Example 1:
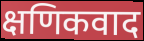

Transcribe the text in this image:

क्षणिकवाद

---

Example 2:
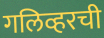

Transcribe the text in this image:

गलिव्हरची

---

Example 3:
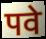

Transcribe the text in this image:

पवे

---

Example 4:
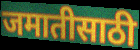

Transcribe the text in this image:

जमातीसाठी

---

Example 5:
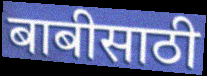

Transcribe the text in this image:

बाबीसाठी